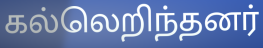
கல்லெறிந்தனர்